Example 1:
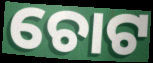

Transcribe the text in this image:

ଚୋଟ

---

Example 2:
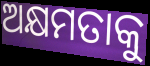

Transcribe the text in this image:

ଅକ୍ଷମତାକୁ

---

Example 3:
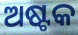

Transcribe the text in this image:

ଅଷ୍ଟକ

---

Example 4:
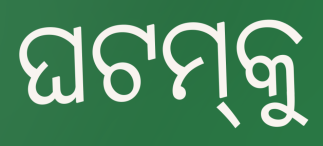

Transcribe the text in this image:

ଘଟମ୍‌କୁ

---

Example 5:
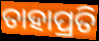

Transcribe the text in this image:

ତାହାପ୍ରତି